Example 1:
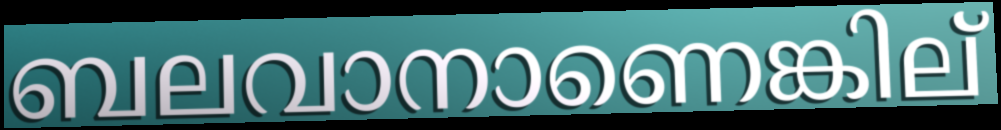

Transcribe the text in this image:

ബലവാനാണെങ്കില്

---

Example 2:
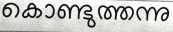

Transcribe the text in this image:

കൊണ്ടുത്തന്നു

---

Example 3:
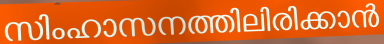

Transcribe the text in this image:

സിംഹാസനത്തിലിരിക്കാൻ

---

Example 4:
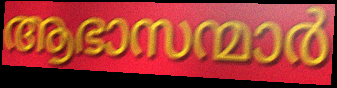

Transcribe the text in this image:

ആഭാസന്മാർ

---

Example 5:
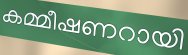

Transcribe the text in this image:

കമ്മീഷണറായി